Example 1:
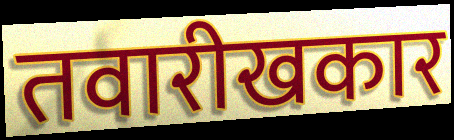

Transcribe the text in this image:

तवारीखकार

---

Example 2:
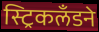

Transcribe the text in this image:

स्ट्रिकलँडने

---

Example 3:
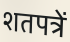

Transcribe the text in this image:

शतपत्रें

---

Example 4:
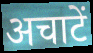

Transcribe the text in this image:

अचाटें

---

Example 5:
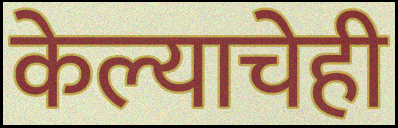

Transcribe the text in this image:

केल्याचेही